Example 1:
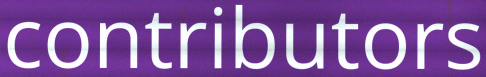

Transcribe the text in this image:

contributors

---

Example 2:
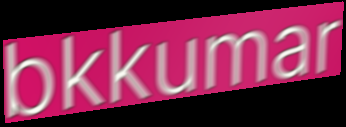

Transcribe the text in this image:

bkkumar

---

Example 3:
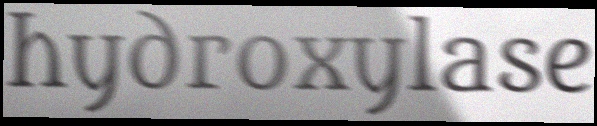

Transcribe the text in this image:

hydroxylase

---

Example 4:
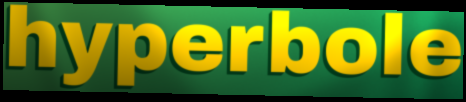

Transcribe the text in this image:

hyperbole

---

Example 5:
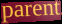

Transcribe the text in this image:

parent